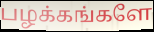
பழக்கங்களே